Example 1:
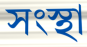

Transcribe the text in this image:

সংস্থা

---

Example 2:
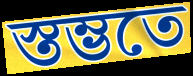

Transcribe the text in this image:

স্তম্ভতে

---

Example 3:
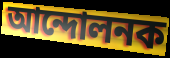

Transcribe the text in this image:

আন্দোলনক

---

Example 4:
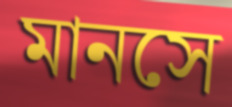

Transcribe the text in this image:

মানসে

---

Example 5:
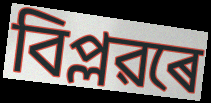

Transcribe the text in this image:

বিপ্লৱৰে